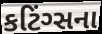
કટિંગ્સના